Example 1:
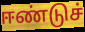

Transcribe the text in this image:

ஈண்டுச்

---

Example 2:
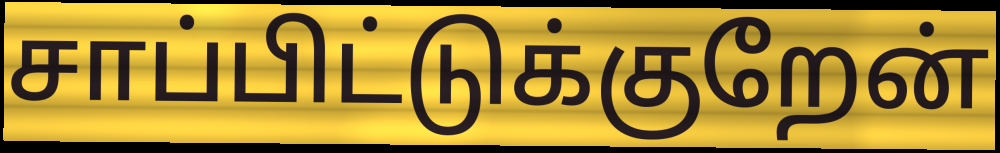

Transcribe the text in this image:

சாப்பிட்டுக்குறேன்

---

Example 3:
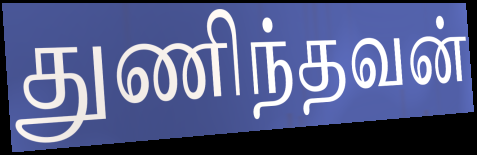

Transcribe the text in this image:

துணிந்தவன்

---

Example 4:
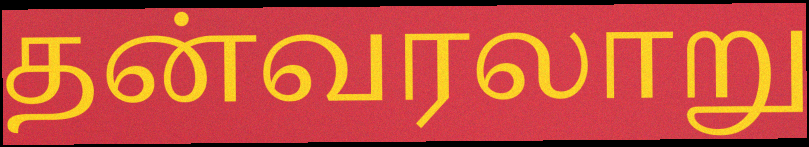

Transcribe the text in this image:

தன்வரலாறு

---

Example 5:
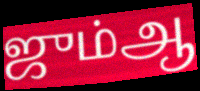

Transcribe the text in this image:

ஜும்ஆ